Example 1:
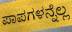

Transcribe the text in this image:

ಪಾಪಗಳನ್ನೆಲ್ಲ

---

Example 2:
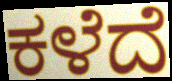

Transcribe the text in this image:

ಕಳೆದೆ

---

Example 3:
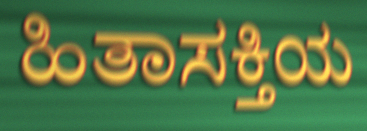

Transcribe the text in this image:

ಹಿತಾಸಕ್ತಿಯ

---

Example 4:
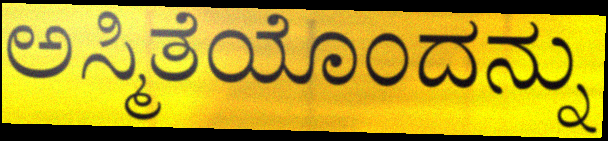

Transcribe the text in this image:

ಅಸ್ಮಿತೆಯೊಂದನ್ನು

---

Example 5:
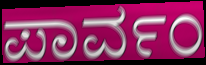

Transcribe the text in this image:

ಪಾರ್ವಂ